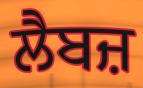
ਲੈਬਜ਼